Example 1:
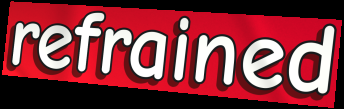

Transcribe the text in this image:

refrained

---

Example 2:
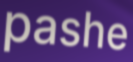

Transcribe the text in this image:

pashe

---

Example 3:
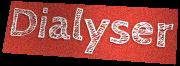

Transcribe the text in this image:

Dialyser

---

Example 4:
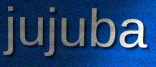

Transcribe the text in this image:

jujuba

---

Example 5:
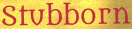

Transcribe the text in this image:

Stubborn